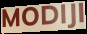
MODIJI